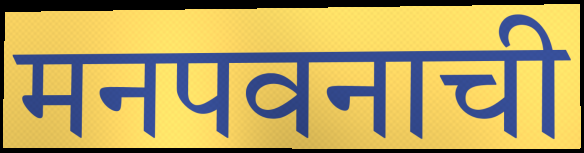
मनपवनाची